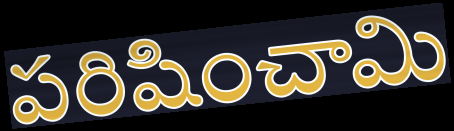
పరిషించామి